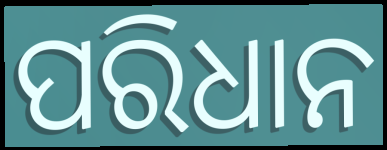
ପରିଧାନ